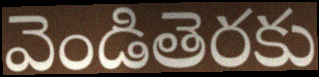
వెండితెరకు